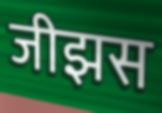
जीझस